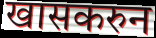
खासकरुन